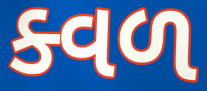
ક્વળ